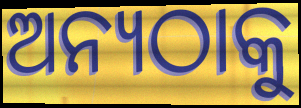
ଅନ୍ୟଠାକୁ